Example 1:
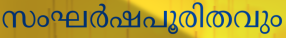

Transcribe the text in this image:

സംഘർഷപൂരിതവും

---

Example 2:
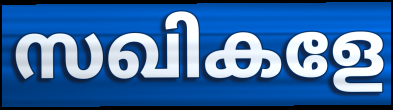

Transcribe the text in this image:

സഖികളേ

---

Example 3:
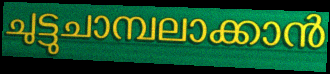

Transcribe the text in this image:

ചുട്ടുചാമ്പലാക്കാൻ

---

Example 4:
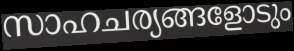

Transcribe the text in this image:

സാഹചര്യങ്ങളോടും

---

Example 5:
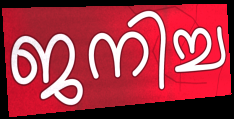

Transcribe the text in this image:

ജനിച്ച